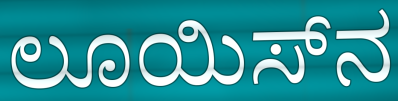
ಲೂಯಿಸ್‌ನ